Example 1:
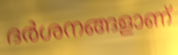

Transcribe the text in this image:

ദർശനങ്ങളാണ്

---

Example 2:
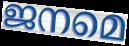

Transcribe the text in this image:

ജനമെ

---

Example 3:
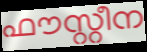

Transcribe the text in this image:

ഫൗസ്റ്റീന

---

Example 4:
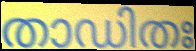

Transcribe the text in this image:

താഡിതഃ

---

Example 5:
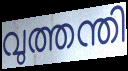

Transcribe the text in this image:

വുത്തന്തി